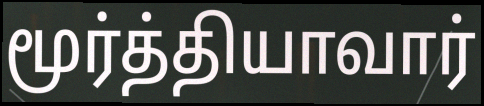
மூர்த்தியாவார்